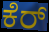
ಕೆರ್